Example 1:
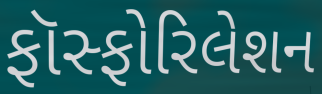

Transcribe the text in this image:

ફૉસ્ફોરિલેશન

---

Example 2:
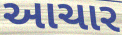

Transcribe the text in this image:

આચાર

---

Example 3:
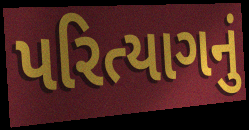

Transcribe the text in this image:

પરિત્યાગનું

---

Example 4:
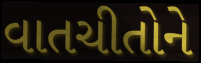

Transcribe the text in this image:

વાતચીતોને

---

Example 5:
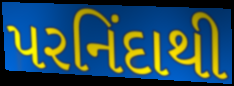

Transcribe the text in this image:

પરનિંદાથી